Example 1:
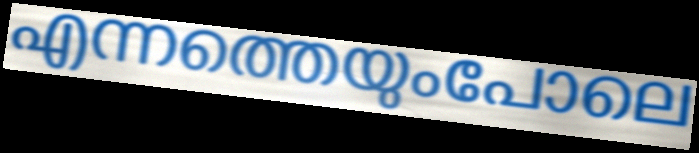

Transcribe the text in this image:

എന്നത്തെയുംപോലെ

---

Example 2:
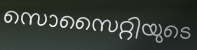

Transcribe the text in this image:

സൊസൈറ്റിയുടെ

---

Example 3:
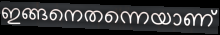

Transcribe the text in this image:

ഇങ്ങനെതന്നെയാണ്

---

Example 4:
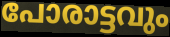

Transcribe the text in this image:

പോരാട്ടവും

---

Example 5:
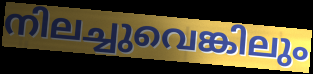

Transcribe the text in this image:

നിലച്ചുവെങ്കിലും